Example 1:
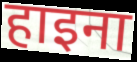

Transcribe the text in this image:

हाइना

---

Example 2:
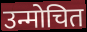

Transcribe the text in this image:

उन्मोचित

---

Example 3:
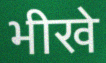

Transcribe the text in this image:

भीखे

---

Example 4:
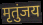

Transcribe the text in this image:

मृतुंजय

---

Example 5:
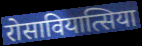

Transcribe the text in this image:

रोसावियात्सिया